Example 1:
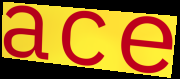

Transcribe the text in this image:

ace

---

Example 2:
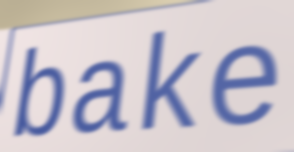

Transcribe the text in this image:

bake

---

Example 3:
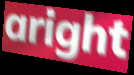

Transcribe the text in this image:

aright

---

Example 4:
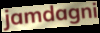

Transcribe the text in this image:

jamdagni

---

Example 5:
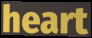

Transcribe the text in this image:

heart